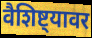
वैशिष्ट्यावर